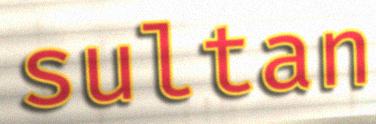
sultan